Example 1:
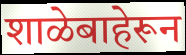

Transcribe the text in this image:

शाळेबाहेरून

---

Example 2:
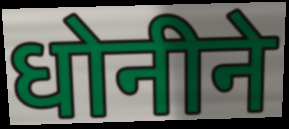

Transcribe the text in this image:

धोनीने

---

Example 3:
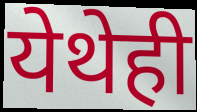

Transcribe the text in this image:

येथेही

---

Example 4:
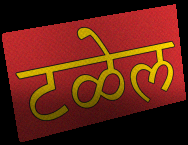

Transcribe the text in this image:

टळेल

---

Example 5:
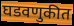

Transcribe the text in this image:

घडवणुकीत